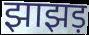
झाझड़